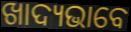
ଖାଦ୍ୟଭାବେ